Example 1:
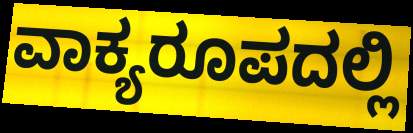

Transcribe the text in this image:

ವಾಕ್ಯರೂಪದಲ್ಲಿ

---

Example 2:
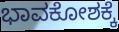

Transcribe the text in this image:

ಭಾವಕೋಶಕ್ಕೆ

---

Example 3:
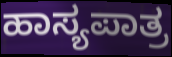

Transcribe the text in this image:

ಹಾಸ್ಯಪಾತ್ರ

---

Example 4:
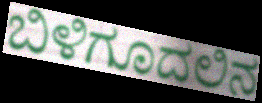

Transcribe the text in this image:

ಬಿಳಿಗೂದಲಿನ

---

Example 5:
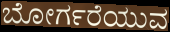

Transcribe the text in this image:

ಬೋರ್ಗರೆಯುವ